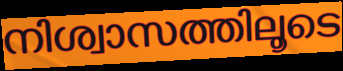
നിശ്വാസത്തിലൂടെ